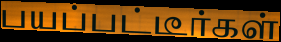
பயப்பட்டீர்கள்